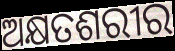
ଅକ୍ଷତଶରୀର